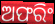
ଅଫରିଂ